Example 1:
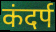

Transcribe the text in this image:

कंदर्प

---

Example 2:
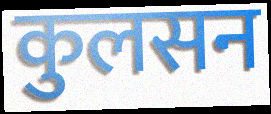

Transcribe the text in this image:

कुलसन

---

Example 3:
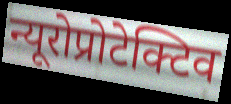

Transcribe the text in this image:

न्यूरोप्रोटेक्टिव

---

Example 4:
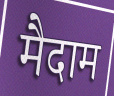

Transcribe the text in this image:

मैदाम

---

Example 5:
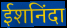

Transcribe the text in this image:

ईशनिंदा